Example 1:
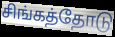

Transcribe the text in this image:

சிங்கத்தோடு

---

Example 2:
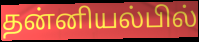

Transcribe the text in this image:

தன்னியல்பில்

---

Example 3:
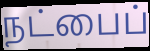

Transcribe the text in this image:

நட்பைப்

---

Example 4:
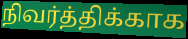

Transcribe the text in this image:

நிவர்த்திக்காக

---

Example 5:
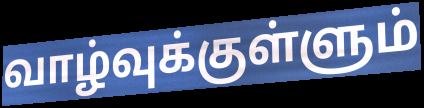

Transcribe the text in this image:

வாழ்வுக்குள்ளும்